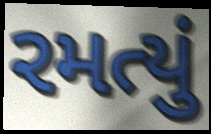
રમત્યું